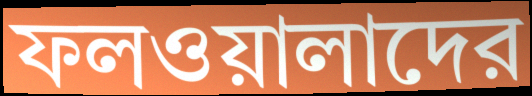
ফলওয়ালাদের